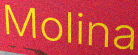
Molina